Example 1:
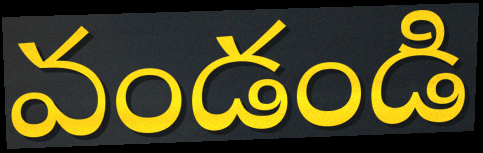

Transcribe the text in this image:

వండండి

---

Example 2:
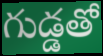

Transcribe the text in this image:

గుడ్డతో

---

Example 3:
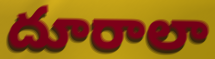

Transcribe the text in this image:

దూరాలా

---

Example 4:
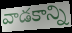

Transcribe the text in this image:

వాడకాన్ని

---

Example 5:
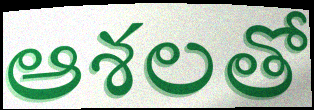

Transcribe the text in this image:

ఆశలతో